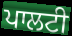
ਪਾਲਟੀ